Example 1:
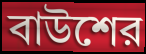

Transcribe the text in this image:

বাউশের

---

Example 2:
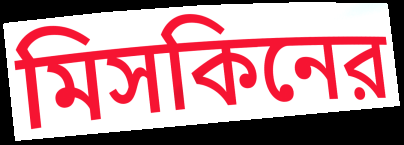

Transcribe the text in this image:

মিসকিনের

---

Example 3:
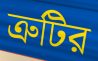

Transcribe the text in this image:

ত্রুটির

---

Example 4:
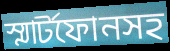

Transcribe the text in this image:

স্মার্টফোনসহ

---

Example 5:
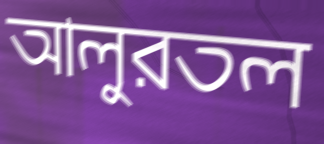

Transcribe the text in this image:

আলুরতল